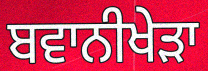
ਬਵਾਨੀਖੇੜਾ